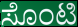
ಸೊಂಟಿ